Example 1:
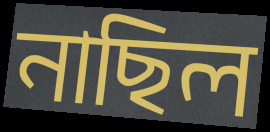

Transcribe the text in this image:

নাছিল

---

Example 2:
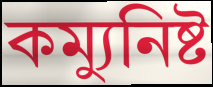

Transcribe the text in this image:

কম্যুনিষ্ট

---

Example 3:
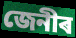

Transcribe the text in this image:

জেনীৰ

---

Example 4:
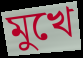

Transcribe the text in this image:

মুখে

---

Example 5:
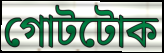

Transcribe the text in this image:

গোটটোক